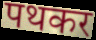
पथकर